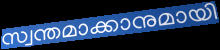
സ്വന്തമാക്കാനുമായി